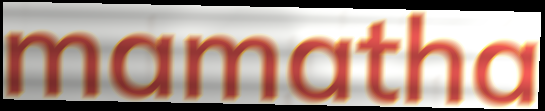
mamatha